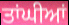
ਤਾਂਘੀਆਂ